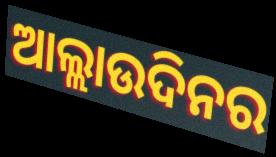
ଆଲ୍ଲାଉଦିନର